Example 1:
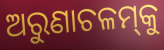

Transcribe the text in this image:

ଅରୁଣାଚଳମ୍‌କୁ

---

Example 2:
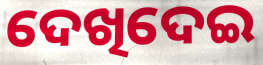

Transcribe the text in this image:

ଦେଖିଦେଇ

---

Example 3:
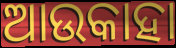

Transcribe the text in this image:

ଆଉକାହା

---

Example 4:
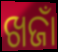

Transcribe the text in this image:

ଖଜାଁ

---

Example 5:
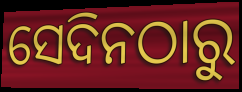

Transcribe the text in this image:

ସେଦିନଠାରୁ